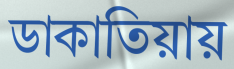
ডাকাতিয়ায়